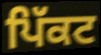
ਪਿੱਕਟ